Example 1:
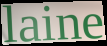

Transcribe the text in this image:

laine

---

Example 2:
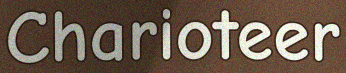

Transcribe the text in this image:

Charioteer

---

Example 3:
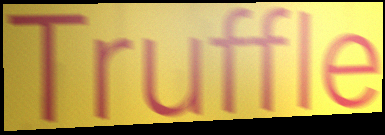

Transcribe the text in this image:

Truffle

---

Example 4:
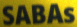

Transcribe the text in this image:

SABAs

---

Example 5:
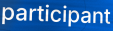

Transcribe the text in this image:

participant